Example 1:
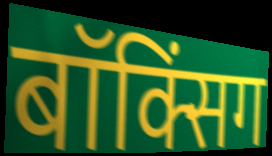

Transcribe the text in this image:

बॉक्सिंग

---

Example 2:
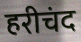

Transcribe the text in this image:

हरीचंद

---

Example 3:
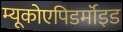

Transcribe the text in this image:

म्यूकोएपिडर्मॉइड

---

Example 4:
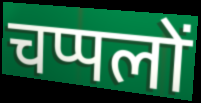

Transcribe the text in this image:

चप्पलों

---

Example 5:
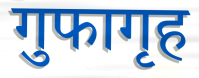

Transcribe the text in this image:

गुफागृह